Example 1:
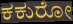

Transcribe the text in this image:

ಕಕುರೋ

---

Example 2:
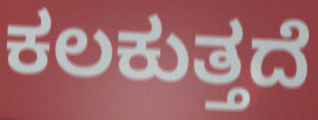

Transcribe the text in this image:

ಕಲಕುತ್ತದೆ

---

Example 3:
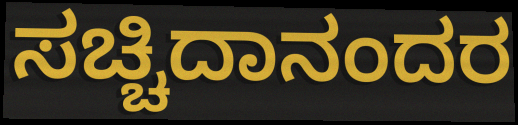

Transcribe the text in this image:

ಸಚ್ಚಿದಾನಂದರ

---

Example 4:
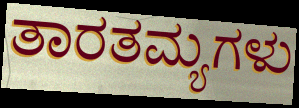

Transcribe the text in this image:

ತಾರತಮ್ಯಗಳು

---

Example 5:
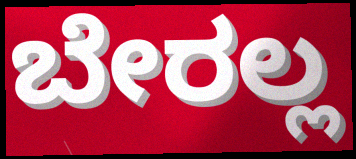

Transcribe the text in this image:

ಬೇರಲ್ಲ